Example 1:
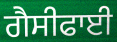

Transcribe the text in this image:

ਗੈਸੀਫਾਈ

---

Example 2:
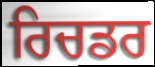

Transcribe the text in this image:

ਰਿਚਡਰ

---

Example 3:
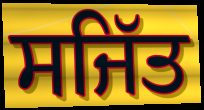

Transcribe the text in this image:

ਸਜਿੱਤ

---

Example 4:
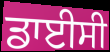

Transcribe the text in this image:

ਡਾਈਸੀ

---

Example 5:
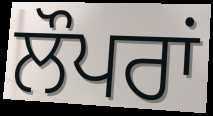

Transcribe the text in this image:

ਲੌਪਰਾਂ